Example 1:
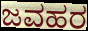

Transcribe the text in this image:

ಜವಹರ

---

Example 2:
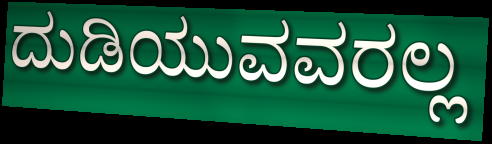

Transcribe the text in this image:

ದುಡಿಯುವವರಲ್ಲ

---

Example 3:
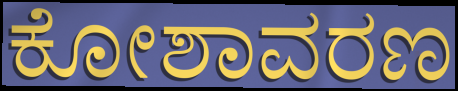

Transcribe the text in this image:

ಕೋಶಾವರಣ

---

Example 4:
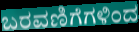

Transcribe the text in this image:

ಬರವಣಿಗೆಗಳಿಂದ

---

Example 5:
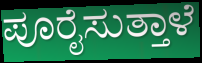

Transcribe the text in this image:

ಪೂರೈಸುತ್ತಾಳೆ